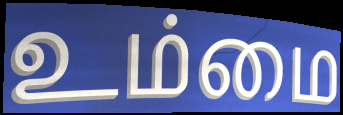
உம்மை